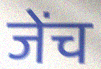
जेंच